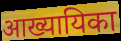
आख्यायिका